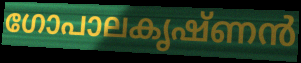
ഗോപാലകൃഷ്ണൻ